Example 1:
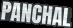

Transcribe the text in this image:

PANCHAL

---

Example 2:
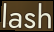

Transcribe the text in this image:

lash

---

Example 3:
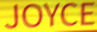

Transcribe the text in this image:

JOYCE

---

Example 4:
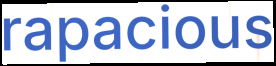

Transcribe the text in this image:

rapacious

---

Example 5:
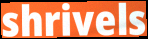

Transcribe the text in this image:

shrivels